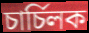
চাৰ্চিলক